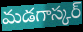
మడగాస్కర్